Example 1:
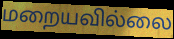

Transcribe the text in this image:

மறையவில்லை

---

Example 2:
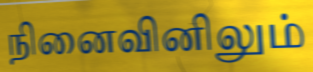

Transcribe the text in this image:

நினைவினிலும்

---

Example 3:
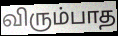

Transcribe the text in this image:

விரும்பாத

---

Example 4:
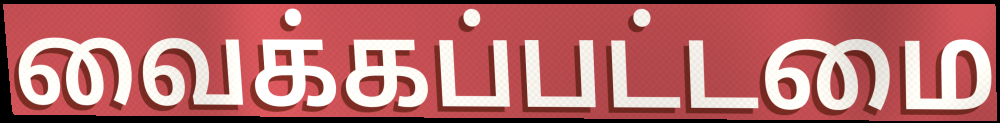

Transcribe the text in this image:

வைக்கப்பட்டமை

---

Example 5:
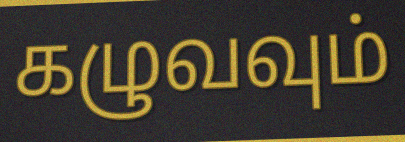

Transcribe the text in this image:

கழுவவும்